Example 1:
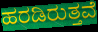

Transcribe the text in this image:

ಹರಡಿರುತ್ತವೆ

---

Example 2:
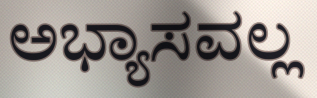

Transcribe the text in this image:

ಅಭ್ಯಾಸವಲ್ಲ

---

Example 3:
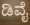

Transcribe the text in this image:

ಡಿವೈ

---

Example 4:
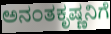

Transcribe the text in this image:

ಅನಂತಕೃಷ್ಣನಿಗೆ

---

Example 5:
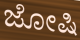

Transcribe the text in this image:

ಜೋಷಿ